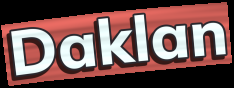
Daklan